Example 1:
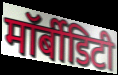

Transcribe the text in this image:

मॉर्बीडिटी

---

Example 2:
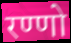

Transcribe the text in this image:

रण्णो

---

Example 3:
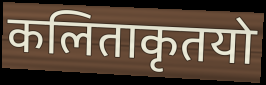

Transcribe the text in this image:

कलिताकृतयो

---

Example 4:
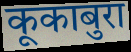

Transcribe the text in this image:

कूकाबुरा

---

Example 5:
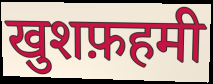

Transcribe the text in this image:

खुशफ़हमी